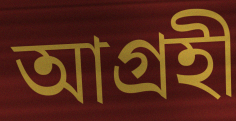
আগ্ৰহী